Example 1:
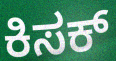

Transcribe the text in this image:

ಕಿಸಕ್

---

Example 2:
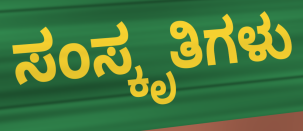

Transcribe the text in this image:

ಸಂಸ್ಕೃತಿಗಳು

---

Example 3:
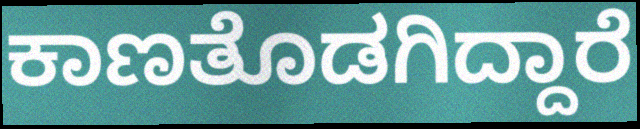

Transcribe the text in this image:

ಕಾಣತೊಡಗಿದ್ದಾರೆ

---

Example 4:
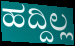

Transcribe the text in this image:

ಹದ್ದಿಲ್ಲ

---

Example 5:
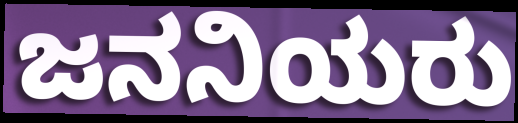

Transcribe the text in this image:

ಜನನಿಯರು